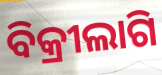
ବିକ୍ରୀଲାଗି